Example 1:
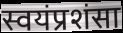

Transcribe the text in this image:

स्वयंप्रशंसा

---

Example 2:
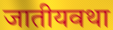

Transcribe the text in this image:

जातीयवथा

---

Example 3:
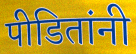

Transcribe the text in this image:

पीडितांनी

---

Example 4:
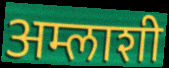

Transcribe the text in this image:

अम्लाशी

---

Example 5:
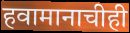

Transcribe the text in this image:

हवामानाचीही